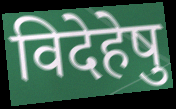
विदेहेषु